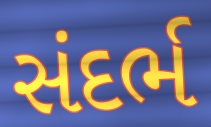
સંદર્ભ